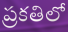
ప్రకతిలో